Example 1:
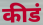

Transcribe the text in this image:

कीडं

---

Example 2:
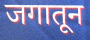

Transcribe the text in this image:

जगातून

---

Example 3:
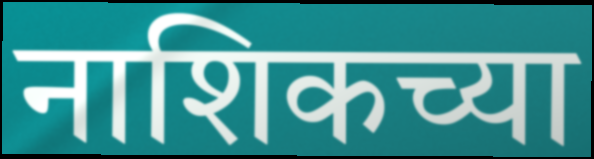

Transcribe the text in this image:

नाशिकच्या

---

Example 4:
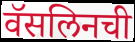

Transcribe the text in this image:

वॅसलिनची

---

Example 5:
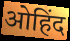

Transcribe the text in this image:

ओहिंद